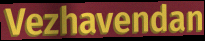
Vezhavendan